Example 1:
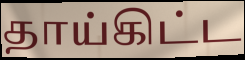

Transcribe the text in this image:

தாய்கிட்ட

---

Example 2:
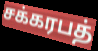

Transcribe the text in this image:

சக்கரபத்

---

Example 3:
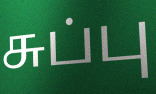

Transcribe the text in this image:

சுப்பு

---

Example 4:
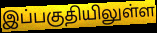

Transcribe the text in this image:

இப்பகுதியிலுள்ள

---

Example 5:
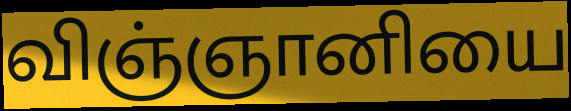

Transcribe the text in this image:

விஞ்ஞானியை